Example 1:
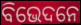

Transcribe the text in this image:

ବିଭେଦନେ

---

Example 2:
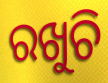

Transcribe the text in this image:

ରଖୁଚି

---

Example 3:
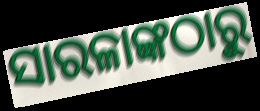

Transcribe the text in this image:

ସାରଳାଙ୍କଠାରୁ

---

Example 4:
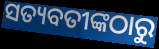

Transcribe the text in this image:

ସତ୍ୟବତୀଙ୍କଠାରୁ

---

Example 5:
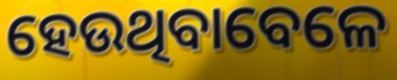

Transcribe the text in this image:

ହେଉଥିବାବେଳେ